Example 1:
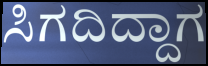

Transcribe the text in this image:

ಸಿಗದಿದ್ದಾಗ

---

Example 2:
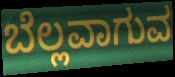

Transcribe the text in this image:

ಬೆಲ್ಲವಾಗುವ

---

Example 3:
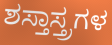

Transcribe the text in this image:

ಶಸ್ತಾಸ್ತ್ರಗಳ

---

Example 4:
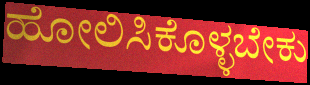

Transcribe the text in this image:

ಹೋಲಿಸಿಕೊಳ್ಳಬೇಕು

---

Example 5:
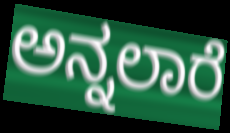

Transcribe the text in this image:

ಅನ್ನಲಾರೆ